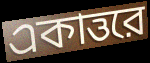
একাত্তরে